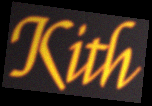
Kith